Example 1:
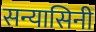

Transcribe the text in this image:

सन्यासिनी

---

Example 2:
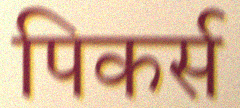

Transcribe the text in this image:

पिकर्स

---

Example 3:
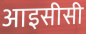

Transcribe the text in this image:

आइसीसी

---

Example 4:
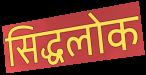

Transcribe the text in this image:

सिद्धलोक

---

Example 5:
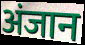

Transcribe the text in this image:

अंजान